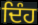
ਦਿੰਹ